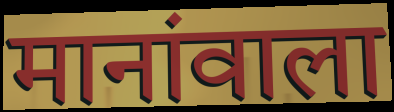
मानांवाला